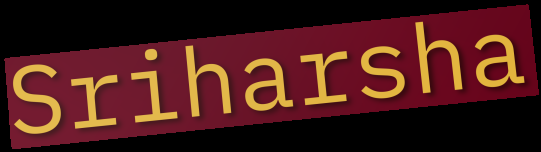
Sriharsha